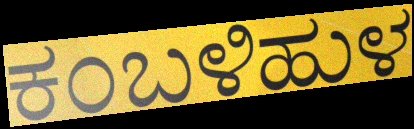
ಕಂಬಳಿಹುಳ